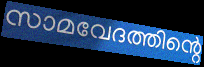
സാമവേദത്തിന്റെ